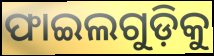
ଫାଇଲଗୁଡ଼ିକୁ